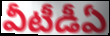
వీటీడీఏ